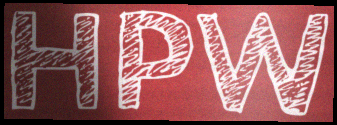
HPW